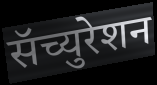
सॅच्युरेशन